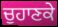
ਚੁਹਾਣਕੇ